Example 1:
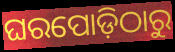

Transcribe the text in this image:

ଘରପୋଡ଼ିଠାରୁ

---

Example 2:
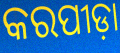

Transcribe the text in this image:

କରପୀଡ଼ା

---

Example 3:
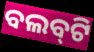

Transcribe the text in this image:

ବଲବ୍‌ଟି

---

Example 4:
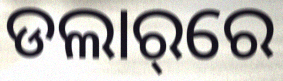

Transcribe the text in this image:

ଡଲାର୍‌ରେ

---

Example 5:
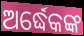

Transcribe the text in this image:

ଅର୍ଦ୍ଧେକଙ୍କ